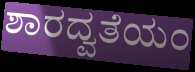
ಶಾರದ್ವತೆಯಂ